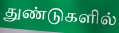
துண்டுகளில்